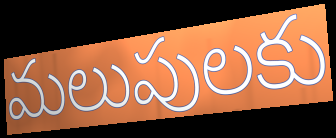
మలుపులకు